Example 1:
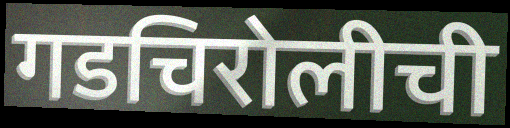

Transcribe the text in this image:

गडचिरोलीची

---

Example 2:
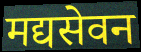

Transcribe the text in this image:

मद्यसेवन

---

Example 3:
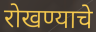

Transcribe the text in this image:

रोखण्याचे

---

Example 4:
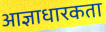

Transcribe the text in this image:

आज्ञाधारकता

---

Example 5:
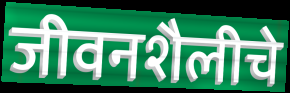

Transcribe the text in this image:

जीवनशैलीचे